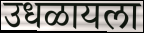
उधळायला